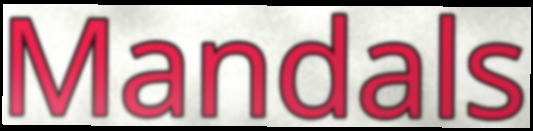
Mandals